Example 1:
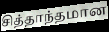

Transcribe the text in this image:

சித்தாந்தமான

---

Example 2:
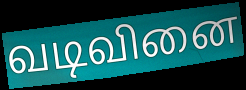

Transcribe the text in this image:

வடிவினை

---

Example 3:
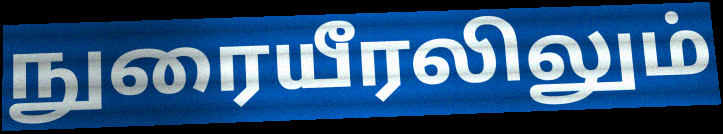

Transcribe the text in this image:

நுரையீரலிலும்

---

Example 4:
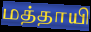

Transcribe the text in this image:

மத்தாயி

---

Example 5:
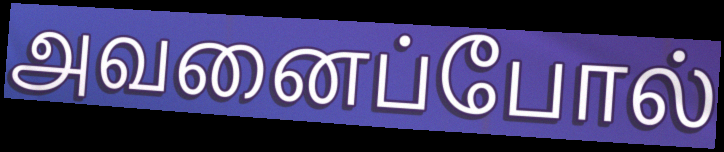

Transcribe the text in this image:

அவனைப்போல்